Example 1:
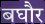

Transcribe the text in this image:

बघौर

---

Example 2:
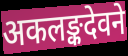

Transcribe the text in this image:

अकलङ्कदेवने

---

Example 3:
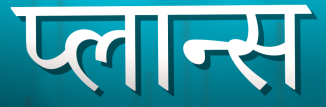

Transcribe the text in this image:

प्लान्स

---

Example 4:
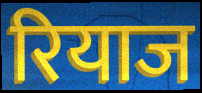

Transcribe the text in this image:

रियाज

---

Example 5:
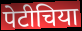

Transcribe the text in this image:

पेटीचिया